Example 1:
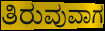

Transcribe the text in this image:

ತಿರುವುವಾಗ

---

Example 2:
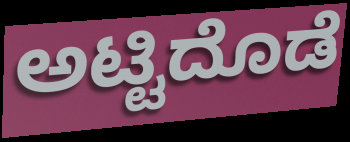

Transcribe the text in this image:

ಅಟ್ಟಿದೊಡೆ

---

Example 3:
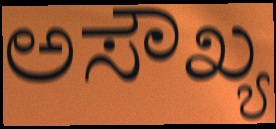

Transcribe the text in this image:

ಅಸೌಖ್ಯ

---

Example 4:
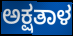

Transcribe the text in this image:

ಅಕ್ಷತಾಳ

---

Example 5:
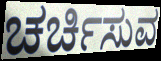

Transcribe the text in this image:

ಚರ್ಚಿಸುವ